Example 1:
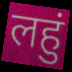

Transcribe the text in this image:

लहुं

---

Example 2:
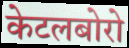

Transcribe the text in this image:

केटलबोरो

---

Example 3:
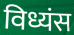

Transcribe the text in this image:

विध्यंस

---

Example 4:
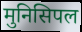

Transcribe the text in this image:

मुनिसिपल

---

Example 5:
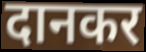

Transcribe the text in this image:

दानकर